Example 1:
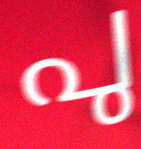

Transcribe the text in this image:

പു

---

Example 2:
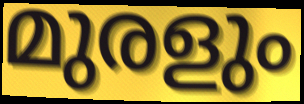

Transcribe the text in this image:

മുരളും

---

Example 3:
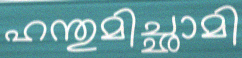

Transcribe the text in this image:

ഹന്തുമിച്ഛാമി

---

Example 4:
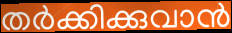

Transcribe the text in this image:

തർക്കിക്കുവാൻ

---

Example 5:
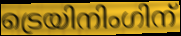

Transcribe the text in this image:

ട്രെയിനിംഗിന്